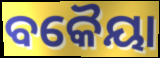
ବକୈୟା